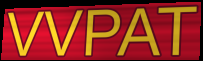
VVPAT